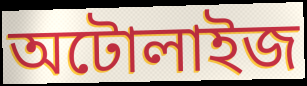
অটোলাইজ